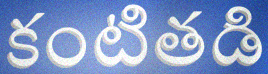
కంటితడి